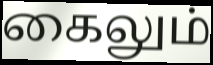
கைலும்